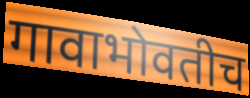
गावाभोवतीच